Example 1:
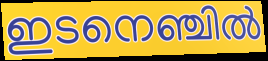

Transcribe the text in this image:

ഇടനെഞ്ചിൽ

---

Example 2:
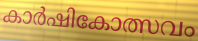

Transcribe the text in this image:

കാർഷികോത്സവം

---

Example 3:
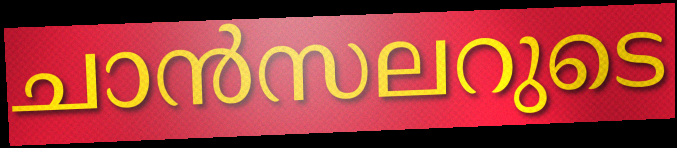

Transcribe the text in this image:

ചാൻസലറുടെ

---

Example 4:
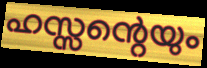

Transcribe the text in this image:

ഹസ്സന്റെയും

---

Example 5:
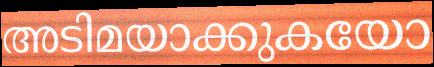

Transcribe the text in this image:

അടിമയാക്കുകയോ